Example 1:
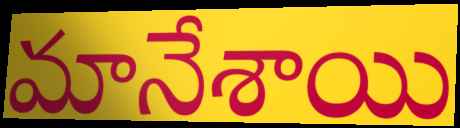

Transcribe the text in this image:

మానేశాయి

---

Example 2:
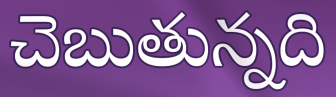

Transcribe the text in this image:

చెబుతున్నది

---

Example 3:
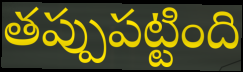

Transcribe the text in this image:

తప్పుపట్టింది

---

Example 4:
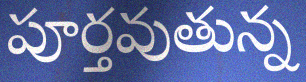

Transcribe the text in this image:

పూర్తవుతున్న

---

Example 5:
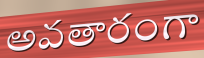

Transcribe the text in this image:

అవతారంగా